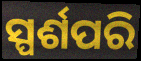
ସ୍ପର୍ଶପରି